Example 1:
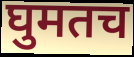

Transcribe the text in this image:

घुमतच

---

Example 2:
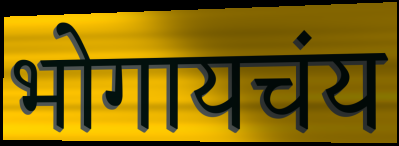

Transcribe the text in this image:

भोगायचंय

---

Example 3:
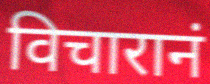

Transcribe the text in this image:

विचारानं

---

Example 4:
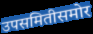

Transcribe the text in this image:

उपसमितीसमोर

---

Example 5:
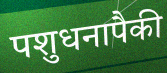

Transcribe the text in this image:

पशुधनापैकी